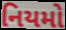
નિયમો